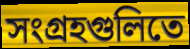
সংগ্রহগুলিতে